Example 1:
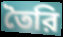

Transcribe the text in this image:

তৈরি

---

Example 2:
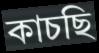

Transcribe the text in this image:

কাচছি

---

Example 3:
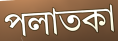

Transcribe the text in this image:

পলাতকা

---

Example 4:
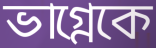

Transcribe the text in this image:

ভাগ্নেকে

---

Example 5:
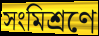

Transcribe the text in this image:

সংমিশ্রণে